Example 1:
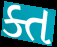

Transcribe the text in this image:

ક્ત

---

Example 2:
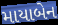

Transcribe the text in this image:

માયાબેન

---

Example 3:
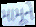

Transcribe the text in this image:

મામૂને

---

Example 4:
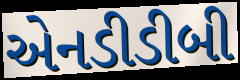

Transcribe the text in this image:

એનડીડીબી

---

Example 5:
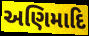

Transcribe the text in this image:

અણિમાદિ